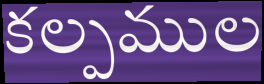
కల్పముల